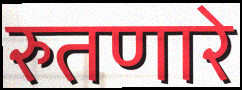
रुतणारे